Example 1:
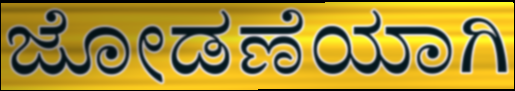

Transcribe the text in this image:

ಜೋಡಣೆಯಾಗಿ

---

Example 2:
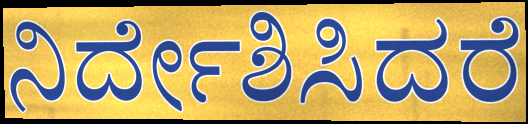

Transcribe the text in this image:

ನಿರ್ದೇಶಿಸಿದರೆ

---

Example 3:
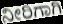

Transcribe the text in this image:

ನೀರಿಗಾಗಿ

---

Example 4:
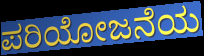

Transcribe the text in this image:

ಪರಿಯೋಜನೆಯ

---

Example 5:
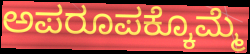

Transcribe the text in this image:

ಅಪರೂಪಕ್ಕೊಮ್ಮೆ